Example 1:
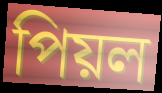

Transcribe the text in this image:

পিয়ল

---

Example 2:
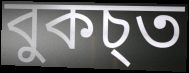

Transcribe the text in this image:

বুকচ্ত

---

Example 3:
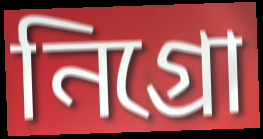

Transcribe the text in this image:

নিগ্ৰো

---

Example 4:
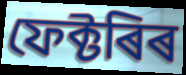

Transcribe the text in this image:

ফেক্টৰিৰ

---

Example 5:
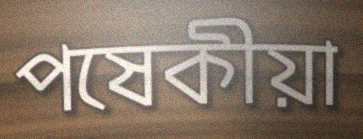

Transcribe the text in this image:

পষেকীয়া